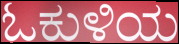
ಓಕುಳಿಯ